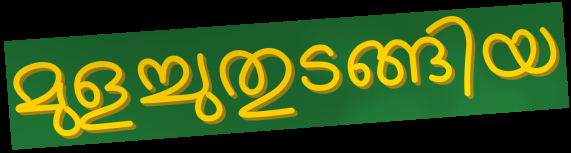
മുളച്ചുതുടങ്ങിയ